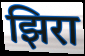
झिरा